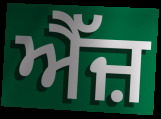
ਐੱਜ਼